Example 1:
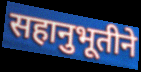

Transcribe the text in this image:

सहानुभूतीने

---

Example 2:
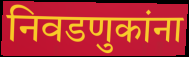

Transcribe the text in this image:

निवडणुकांना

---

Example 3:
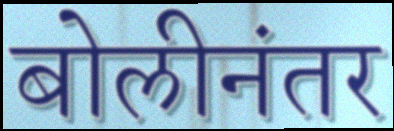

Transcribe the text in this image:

बोलीनंतर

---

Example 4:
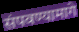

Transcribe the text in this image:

संपवण्यामागे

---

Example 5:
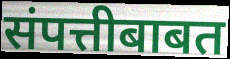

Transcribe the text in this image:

संपत्तीबाबत